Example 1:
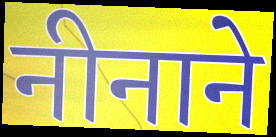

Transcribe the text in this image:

नीनाने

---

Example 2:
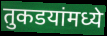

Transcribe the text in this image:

तुकडयांमध्ये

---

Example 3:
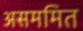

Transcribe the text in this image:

असममित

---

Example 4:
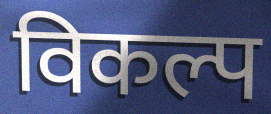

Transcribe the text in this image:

विकल्प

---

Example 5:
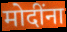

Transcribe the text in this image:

मोदींना